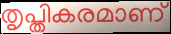
തൃപ്തികരമാണ്